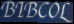
BIBCOL